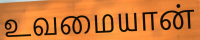
உவமையான்